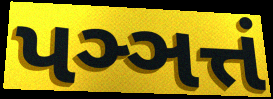
પઞ્ઞત્તં